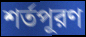
শর্তপূরণ